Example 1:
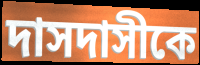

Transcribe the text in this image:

দাসদাসীকে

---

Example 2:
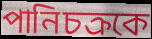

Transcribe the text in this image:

পানিচক্রকে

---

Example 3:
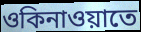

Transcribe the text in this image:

ওকিনাওয়াতে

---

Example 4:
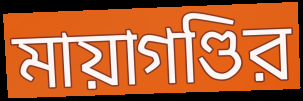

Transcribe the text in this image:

মায়াগণ্ডির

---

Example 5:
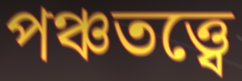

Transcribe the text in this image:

পঞ্চতত্ত্বে